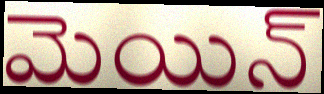
మెయిన్